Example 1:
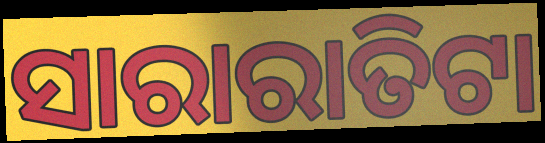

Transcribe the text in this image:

ସାରାରାତିଟା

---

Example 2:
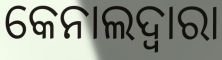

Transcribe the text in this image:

କେନାଲଦ୍ଵାରା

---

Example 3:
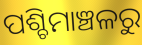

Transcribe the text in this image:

ପଶ୍ଚିମାଞ୍ଚଳରୁ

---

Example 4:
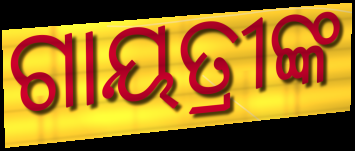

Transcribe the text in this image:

ଗାୟତ୍ରୀଙ୍କ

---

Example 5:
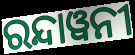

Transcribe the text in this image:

ରନ୍ଦାୱନୀ